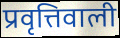
प्रवृत्तिवाली